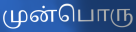
முன்பொரு